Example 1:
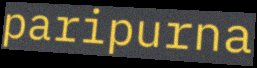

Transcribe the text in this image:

paripurna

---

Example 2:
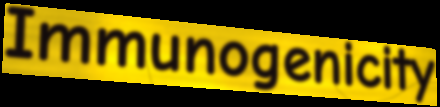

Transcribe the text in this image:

Immunogenicity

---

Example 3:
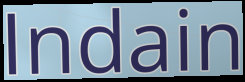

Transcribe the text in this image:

Indain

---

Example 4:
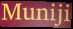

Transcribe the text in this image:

Muniji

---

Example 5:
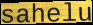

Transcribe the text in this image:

sahelu